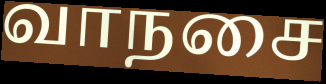
வாநசை